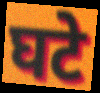
घटे